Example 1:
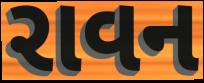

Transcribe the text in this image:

રાવન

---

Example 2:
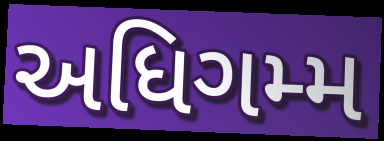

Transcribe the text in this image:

અધિગમ્મ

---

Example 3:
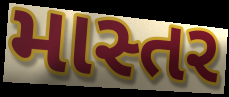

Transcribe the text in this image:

માસ્તર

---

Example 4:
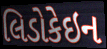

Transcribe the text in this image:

લિડોકેઇન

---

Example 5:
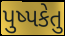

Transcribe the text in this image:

પુષ્પકેતુ